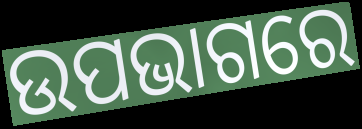
ଉପଭାଗରେ